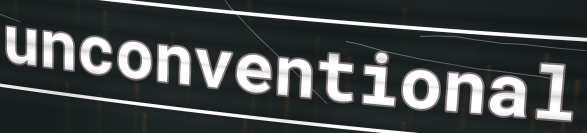
unconventional